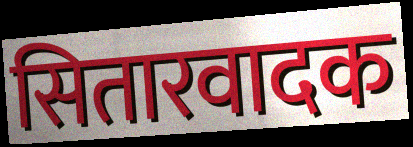
सितारवादक